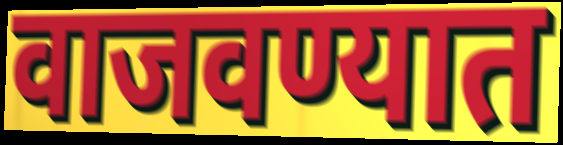
वाजवण्यात